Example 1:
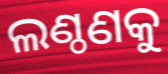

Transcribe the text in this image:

ଲଣ୍ଠଣକୁ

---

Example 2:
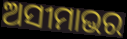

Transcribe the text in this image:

ଅସୀମାଭର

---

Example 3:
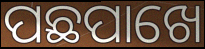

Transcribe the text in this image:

ପଛପାଖେ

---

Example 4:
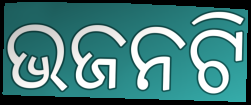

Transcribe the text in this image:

ଭଜନଟି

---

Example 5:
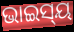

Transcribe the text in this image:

ଭାଇସ୍‌ୟ